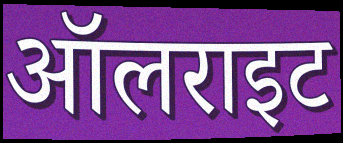
ऑलराइट